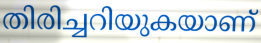
തിരിച്ചറിയുകയാണ്